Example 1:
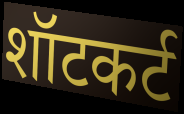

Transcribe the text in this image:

शॉटकर्ट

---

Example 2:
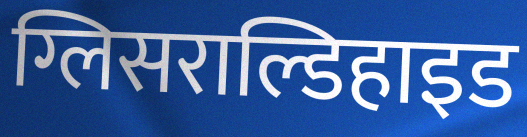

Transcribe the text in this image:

ग्लिसराल्डिहाइड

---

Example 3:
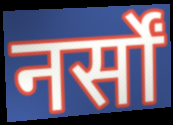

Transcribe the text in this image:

नर्सों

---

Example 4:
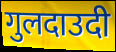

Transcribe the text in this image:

गुलदाउदी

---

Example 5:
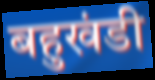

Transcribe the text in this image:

बहुखंडी